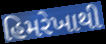
હિમરેખાથી